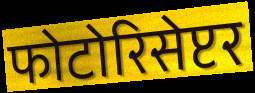
फोटोरिसेप्टर